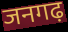
जनगढ़